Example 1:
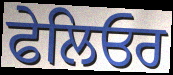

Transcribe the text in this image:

ਫੇਲਿਓਰ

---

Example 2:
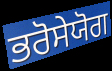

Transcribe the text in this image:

ਭਰੋਸੇਯੋਗ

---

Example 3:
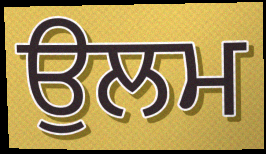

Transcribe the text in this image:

ਉਲਮ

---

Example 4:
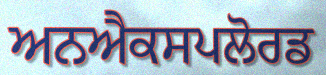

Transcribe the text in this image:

ਅਨਐਕਸਪਲੋਰਡ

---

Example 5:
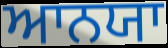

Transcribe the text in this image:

ਆਨਯਾ